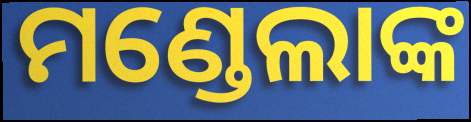
ମଣ୍ଡେଲାଙ୍କ